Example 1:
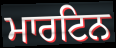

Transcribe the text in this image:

ਮਾਰਟਿਨ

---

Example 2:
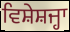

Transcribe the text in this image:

ਵਿਸ਼ੇਸ਼ਜ੍ਹਾ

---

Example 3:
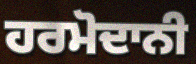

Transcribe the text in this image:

ਹਰਮੋਦਾਨੀ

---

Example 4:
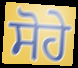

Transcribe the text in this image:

ਸੋਹੇ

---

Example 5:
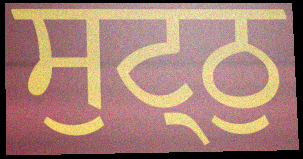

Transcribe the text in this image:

ਸੁਟ੍ਠੁ